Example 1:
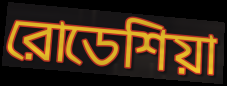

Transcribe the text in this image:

রোডেশিয়া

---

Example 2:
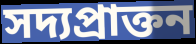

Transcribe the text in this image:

সদ্যপ্রাক্তন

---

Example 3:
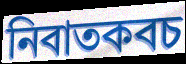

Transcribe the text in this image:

নিবাতকবচ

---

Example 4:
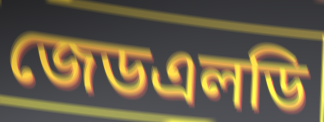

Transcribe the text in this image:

জেডএলডি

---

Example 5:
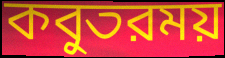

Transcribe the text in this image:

কবুতরময়